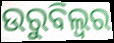
ଉରୁବିଲ୍ଵର